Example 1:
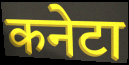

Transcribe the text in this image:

कनेटा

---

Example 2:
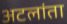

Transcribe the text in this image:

अटलांता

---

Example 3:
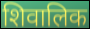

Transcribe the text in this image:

शिवालिक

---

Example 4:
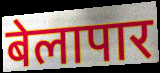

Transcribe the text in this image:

बेलापार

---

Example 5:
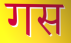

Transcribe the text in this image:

गस